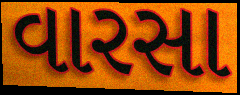
વારસા